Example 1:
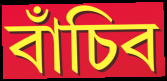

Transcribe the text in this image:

বাঁচিব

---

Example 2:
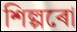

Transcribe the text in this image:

শিল্পৰো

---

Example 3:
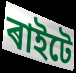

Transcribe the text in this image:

ৰাইটে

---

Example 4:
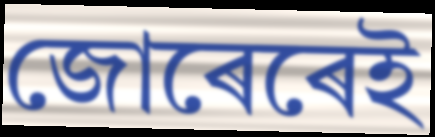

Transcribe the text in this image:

জোৰেৰেই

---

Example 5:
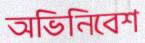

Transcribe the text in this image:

অভিনিবেশ